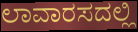
ಲಾವಾರಸದಲ್ಲಿ